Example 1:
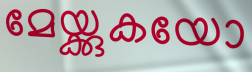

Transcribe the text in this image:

മേയ്ക്കുകയോ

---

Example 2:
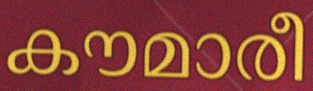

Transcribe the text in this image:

കൗമാരീ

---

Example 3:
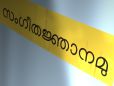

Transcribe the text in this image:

സംഗീതജ്ഞാനമു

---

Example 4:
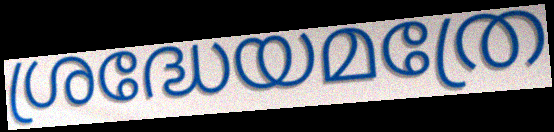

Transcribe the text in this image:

ശ്രദ്ധേയമത്രേ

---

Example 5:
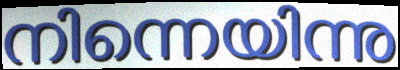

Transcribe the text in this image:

നിന്നെയിന്നു